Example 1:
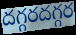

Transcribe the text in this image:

దగ్గరదగ్గర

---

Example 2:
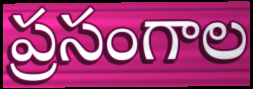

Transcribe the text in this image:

ప్రసంగాల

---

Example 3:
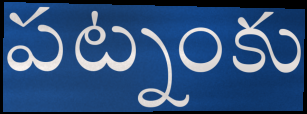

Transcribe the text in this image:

పట్నంకు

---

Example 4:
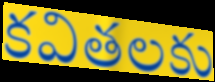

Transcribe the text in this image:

కవితలకు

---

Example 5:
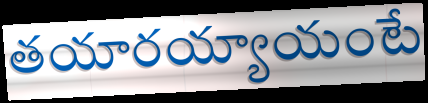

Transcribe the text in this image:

తయారయ్యాయంటే